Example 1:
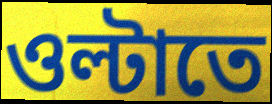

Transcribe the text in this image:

ওল্টাতে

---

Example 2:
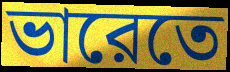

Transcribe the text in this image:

ভারেতে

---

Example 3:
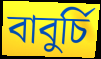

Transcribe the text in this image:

বাবুর্চি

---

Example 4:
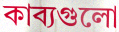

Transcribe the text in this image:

কাব্যগুলো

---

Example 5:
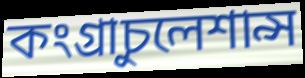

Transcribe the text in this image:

কংগ্রাচুলেশান্স